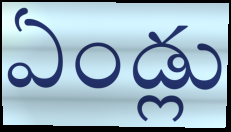
ఏండ్లు